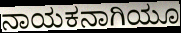
ನಾಯಕನಾಗಿಯೂ